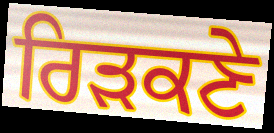
ਰਿੜਕਣੇ